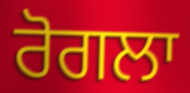
ਰੋਗਲਾ